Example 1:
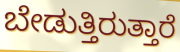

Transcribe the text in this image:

ಬೇಡುತ್ತಿರುತ್ತಾರೆ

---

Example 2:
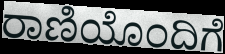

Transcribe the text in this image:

ರಾಣಿಯೊಂದಿಗೆ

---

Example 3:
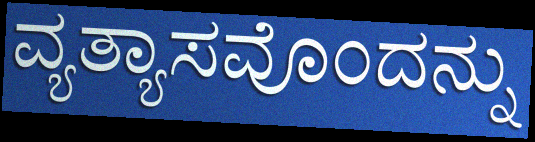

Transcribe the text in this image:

ವ್ಯತ್ಯಾಸವೊಂದನ್ನು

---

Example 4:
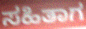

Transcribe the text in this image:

ಸಹಿತಾಗ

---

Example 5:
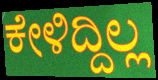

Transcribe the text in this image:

ಕೇಳಿದ್ದಿಲ್ಲ